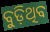
ବୁଡ଼ିଥିବ